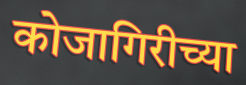
कोजागिरीच्या